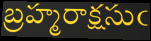
బ్రహ్మరాక్షసుఁ